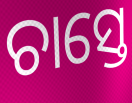
ଚାସ୍ତେ